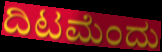
ದಿಟಮೆಂದು